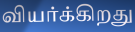
வியர்க்கிறது